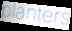
planters